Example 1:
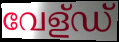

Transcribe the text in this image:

വേള്ഡ്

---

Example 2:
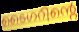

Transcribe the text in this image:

ടൈഗറിന്റെ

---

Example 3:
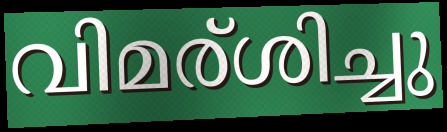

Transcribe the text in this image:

വിമര്ശിച്ചു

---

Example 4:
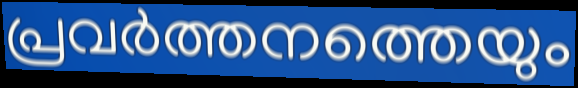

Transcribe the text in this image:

പ്രവർത്തനത്തെയും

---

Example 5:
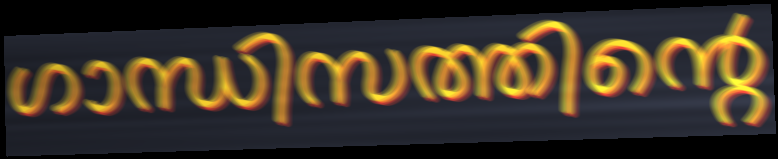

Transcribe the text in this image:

ഗാന്ധിസത്തിന്റെ